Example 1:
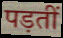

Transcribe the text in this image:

पड़तीं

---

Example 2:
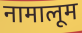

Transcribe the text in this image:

नामालूम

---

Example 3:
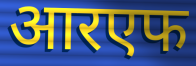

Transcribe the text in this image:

आरएफ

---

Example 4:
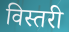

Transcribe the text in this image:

विस्तरी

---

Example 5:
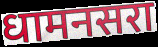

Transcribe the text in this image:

धामनसरा